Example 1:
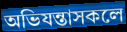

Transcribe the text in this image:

অভিযন্তাসকলে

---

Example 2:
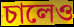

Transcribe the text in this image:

চালেও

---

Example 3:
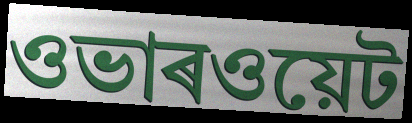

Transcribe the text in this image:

ওভাৰওয়েট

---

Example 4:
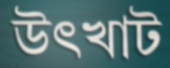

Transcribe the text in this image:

উৎখাট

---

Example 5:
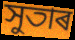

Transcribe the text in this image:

সুতাৰ